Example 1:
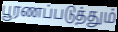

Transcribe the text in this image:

பூரணப்படுத்தும்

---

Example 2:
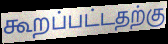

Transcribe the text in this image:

கூறப்பட்டதற்கு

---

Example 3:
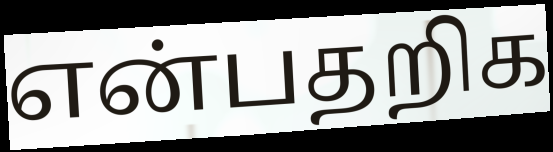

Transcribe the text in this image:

என்பதறிக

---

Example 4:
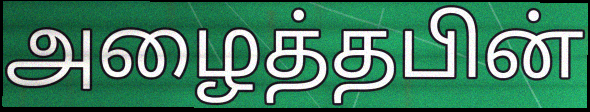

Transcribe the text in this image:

அழைத்தபின்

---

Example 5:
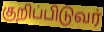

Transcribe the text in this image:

குறிப்பிடுவர்